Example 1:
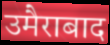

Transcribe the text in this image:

उमैराबाद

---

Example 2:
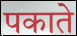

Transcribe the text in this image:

पकाते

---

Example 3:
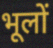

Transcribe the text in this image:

भूलों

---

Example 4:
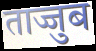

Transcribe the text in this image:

ताज्जुब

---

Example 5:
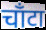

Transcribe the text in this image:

चाँटा